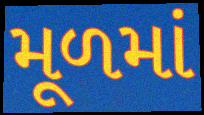
મૂળમાં